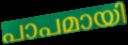
പാപമായി